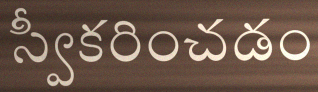
స్వీకరించడం